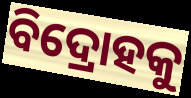
ବିଦ୍ରୋହକୁ